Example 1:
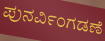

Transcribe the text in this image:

ಪುನರ್ವಿಂಗಡಣೆ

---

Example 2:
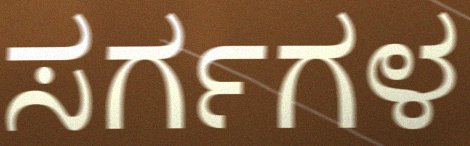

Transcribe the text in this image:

ಸರ್ಗಗಳ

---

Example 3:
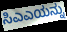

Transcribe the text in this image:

ಸಿಎಎಯನ್ನು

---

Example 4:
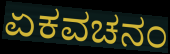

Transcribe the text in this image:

ಏಕವಚನಂ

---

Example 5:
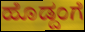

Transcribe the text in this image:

ಹೊಡ್ದಂಗೆ